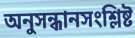
অনুসন্ধানসংশ্লিষ্ট